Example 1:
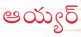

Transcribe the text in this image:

ఆయ్యర్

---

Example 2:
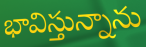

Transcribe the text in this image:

భావిస్తున్నాను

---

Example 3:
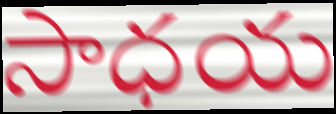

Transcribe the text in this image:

సాధయ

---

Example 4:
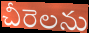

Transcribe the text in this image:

చీరెలను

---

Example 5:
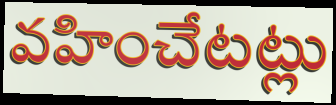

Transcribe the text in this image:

వహించేటట్లు